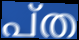
പ്‌ത